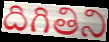
దిగితిని